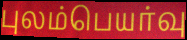
புலம்பெயர்வு